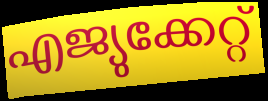
എജ്യുക്കേറ്റ്